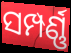
ସମ୍ପର୍ଣ୍ଣ